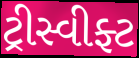
ટ્રીસ્વીફ્ટ